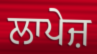
ਲਾਪੇਜ਼